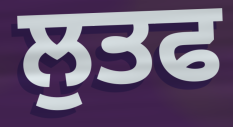
ਲੁਤਫ